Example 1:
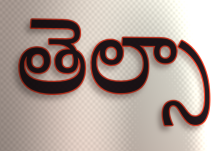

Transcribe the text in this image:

తెల్సా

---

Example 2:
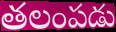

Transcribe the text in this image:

తలంపడు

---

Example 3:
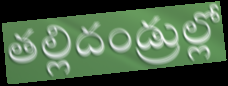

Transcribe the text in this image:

తల్లిదండ్రుల్లో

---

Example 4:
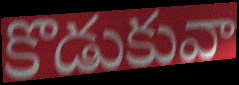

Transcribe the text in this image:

కొడుకువా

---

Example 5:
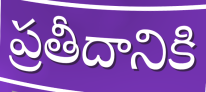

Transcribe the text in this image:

ప్రతీదానికి